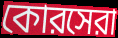
কোরসেরা